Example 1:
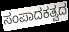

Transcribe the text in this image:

ಸಂಪಾದಕತ್ವದ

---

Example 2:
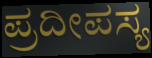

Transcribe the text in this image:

ಪ್ರದೀಪಸ್ಯ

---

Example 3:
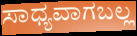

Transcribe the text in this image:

ಸಾಧ್ಯವಾಗಬಲ್ಲ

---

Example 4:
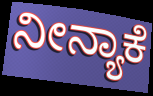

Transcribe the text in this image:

ನೀನ್ಯಾಕೆ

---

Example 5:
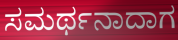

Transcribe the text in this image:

ಸಮರ್ಥನಾದಾಗ